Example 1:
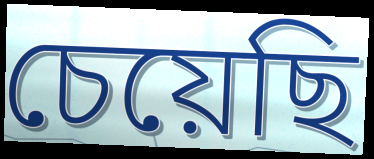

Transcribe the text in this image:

চেয়েছি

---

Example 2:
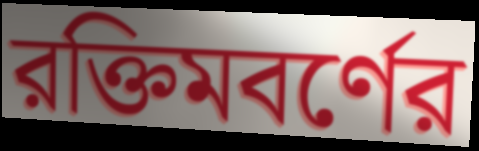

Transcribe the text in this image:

রক্তিমবর্ণের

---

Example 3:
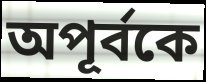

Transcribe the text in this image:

অপূর্বকে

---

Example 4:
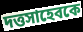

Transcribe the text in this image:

দত্তসাহেবকে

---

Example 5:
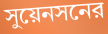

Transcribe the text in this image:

সুয়েনসনের